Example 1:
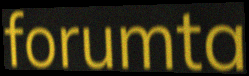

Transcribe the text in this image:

forumta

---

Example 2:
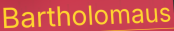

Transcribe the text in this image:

Bartholomaus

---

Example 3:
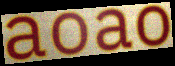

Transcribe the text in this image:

aoao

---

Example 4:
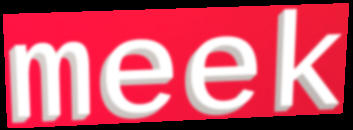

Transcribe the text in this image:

meek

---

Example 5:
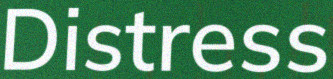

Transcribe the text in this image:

Distress